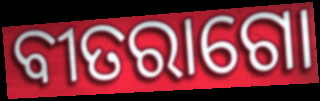
ବୀତରାଗୋ